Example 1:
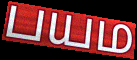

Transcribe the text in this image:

பயம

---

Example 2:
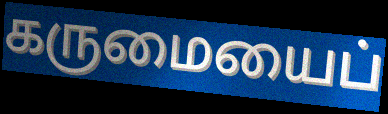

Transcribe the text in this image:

கருமையைப்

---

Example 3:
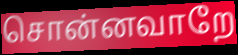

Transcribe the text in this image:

சொன்னவாறே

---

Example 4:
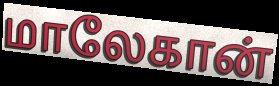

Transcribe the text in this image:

மாலேகான்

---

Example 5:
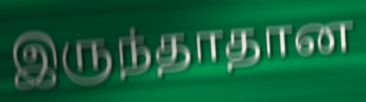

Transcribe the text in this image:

இருந்தாதான